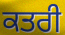
ਕਤਰੀ